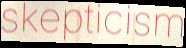
skepticism